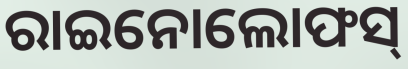
ରାଇନୋଲୋଫସ୍